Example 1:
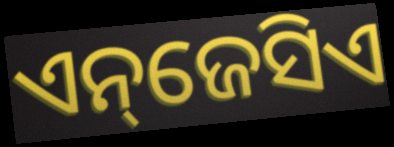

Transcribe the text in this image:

ଏନ୍‌ଜେସିଏ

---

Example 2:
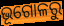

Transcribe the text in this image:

ଭୂଗୋଳରୁ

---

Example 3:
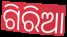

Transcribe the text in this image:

ଗିରିଆ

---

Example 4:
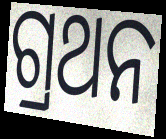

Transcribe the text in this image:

ଗ୍ରଥନ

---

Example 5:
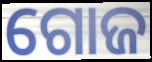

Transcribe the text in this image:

ଗୋଜ